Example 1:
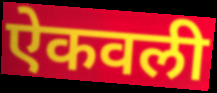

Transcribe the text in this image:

ऐकवली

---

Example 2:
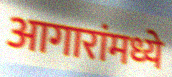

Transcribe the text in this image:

आगारांमध्ये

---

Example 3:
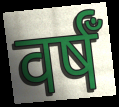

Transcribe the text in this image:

वर्षँ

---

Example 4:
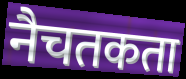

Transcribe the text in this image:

नैचतकता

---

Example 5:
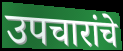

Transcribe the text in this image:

उपचारांचे